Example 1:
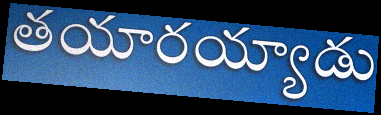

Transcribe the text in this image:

తయారయ్యాడు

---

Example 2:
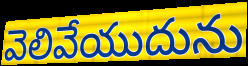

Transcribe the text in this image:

వెలివేయుదును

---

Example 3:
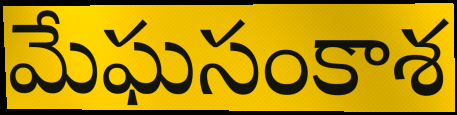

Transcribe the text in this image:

మేఘసంకాశ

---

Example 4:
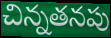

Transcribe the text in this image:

చిన్నతనపు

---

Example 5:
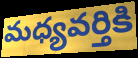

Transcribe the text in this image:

మధ్యవర్తికి